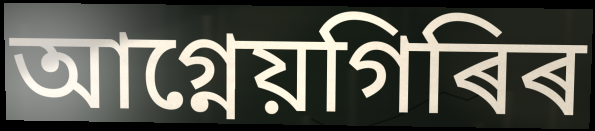
আগ্নেয়গিৰিৰ